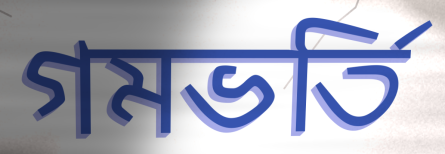
গমভর্তি